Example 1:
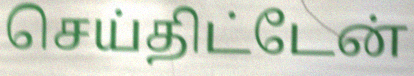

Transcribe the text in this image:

செய்திட்டேன்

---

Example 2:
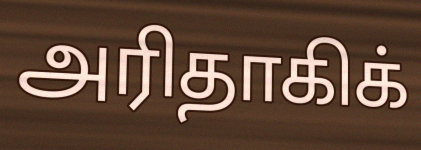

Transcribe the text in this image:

அரிதாகிக்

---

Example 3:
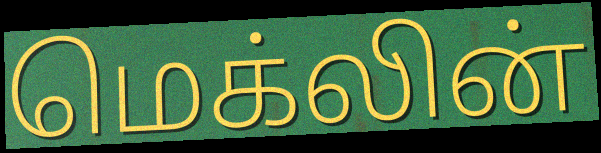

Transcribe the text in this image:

மெக்லின்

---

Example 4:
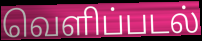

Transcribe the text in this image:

வெளிப்படல்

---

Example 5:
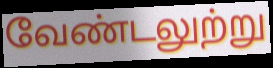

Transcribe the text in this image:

வேண்டலுற்று